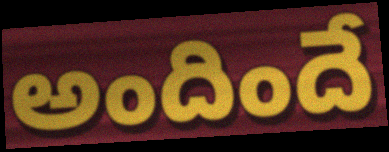
అందిందే